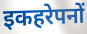
इकहरेपनों